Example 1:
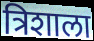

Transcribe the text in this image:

त्रिशाला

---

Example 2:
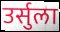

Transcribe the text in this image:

उर्सुला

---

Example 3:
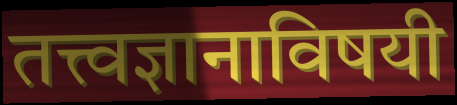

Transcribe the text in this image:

तत्त्वज्ञानाविषयी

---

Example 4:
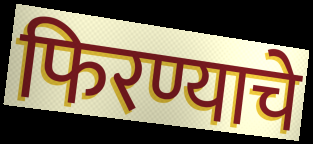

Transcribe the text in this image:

फिरण्याचे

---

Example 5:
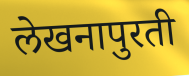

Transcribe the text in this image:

लेखनापुरती